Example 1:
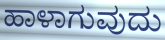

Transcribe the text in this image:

ಹಾಳಾಗುವುದು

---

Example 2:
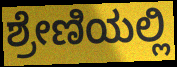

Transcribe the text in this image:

ಶ್ರೇಣಿಯಲ್ಲಿ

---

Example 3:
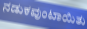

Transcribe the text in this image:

ನಡುಕವುಂಟಾಯಿತು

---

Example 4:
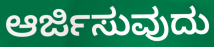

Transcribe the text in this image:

ಆರ್ಜಿಸುವುದು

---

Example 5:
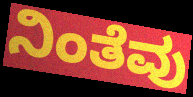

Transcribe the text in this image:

ನಿಂತೆವು